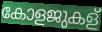
കോളജുകള്